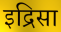
इद्रिसा